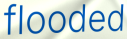
flooded